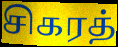
சிகரத்